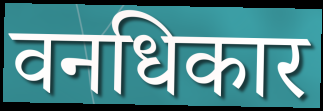
वनधिकार